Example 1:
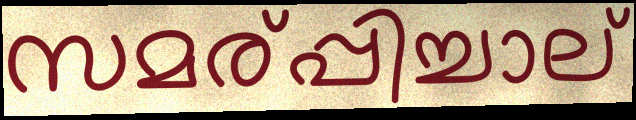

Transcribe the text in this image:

സമര്പ്പിച്ചാല്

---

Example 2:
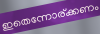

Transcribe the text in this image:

ഇതെന്നോര്ക്കണം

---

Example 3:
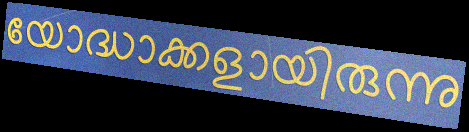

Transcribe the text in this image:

യോദ്ധാക്കളായിരുന്നു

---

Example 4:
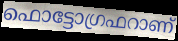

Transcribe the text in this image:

ഫൊട്ടോഗ്രഫറാണ്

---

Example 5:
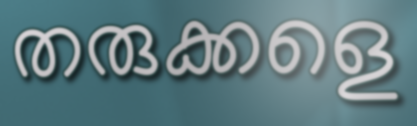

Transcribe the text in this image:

തരുക്കളെ